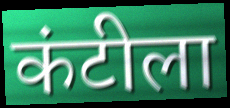
कंटीला